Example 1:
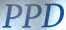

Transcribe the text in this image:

PPD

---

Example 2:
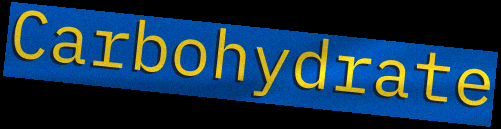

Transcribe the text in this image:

Carbohydrate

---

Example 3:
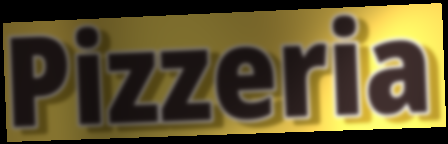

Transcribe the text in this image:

Pizzeria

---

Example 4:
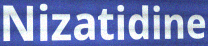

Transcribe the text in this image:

Nizatidine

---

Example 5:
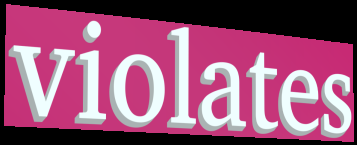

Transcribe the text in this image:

violates